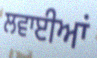
ਲਵਾਈਆਂ